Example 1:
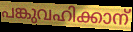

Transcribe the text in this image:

പങ്കുവഹിക്കാന്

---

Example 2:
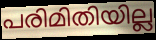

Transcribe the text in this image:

പരിമിതിയില്ല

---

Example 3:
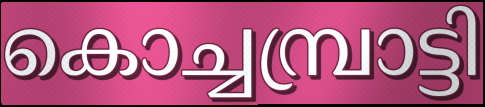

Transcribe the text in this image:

കൊച്ചമ്പ്രാട്ടി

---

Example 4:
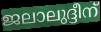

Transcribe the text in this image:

ജലാലുദ്ദീന്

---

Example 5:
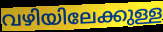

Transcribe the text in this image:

വഴിയിലേക്കുള്ള